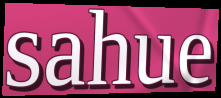
sahue